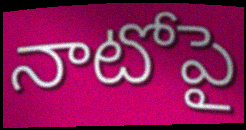
నాటోపై